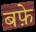
बफ़े